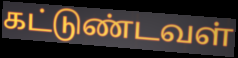
கட்டுண்டவள்